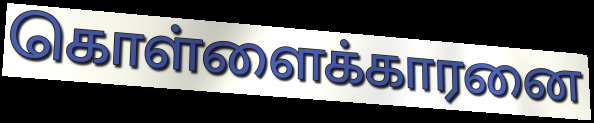
கொள்ளைக்காரனை